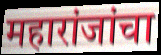
महारांजांचा